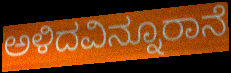
ಅಳಿದವಿನ್ನೂರಾನೆ